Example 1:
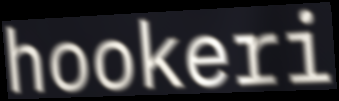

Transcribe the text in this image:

hookeri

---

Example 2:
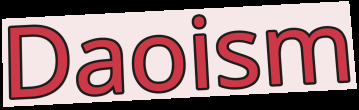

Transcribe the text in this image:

Daoism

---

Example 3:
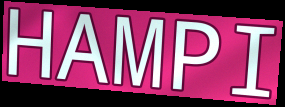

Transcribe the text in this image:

HAMPI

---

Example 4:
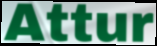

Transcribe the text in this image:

Attur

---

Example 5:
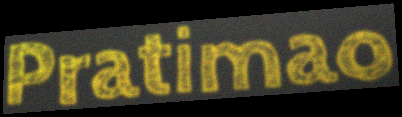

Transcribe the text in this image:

Pratimao